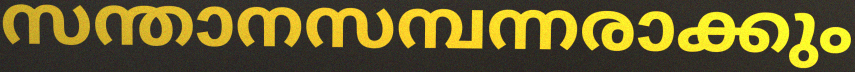
സന്താനസമ്പന്നരാക്കും